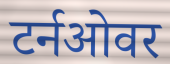
टर्नओवर